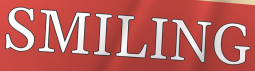
SMILING